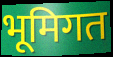
भूमिगत